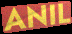
ANIL